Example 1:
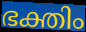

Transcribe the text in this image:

ഭക്തിം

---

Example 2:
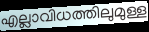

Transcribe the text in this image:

എല്ലാവിധത്തിലുമുള്ള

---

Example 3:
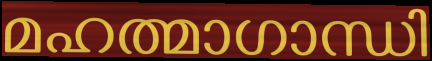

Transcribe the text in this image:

മഹത്മാഗാന്ധി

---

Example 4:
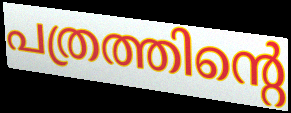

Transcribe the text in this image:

പത്രത്തിന്റെ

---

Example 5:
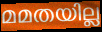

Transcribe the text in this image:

മമതയില്ല